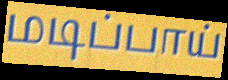
மடிப்பாய்